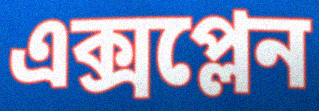
এক্সপ্লেন